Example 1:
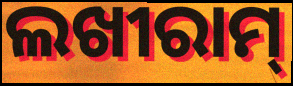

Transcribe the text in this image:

ଲଖୀରାମ୍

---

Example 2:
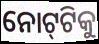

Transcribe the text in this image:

ନୋଟ୍‌ଟିକୁ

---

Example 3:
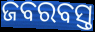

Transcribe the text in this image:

ଜବରବସ୍ତ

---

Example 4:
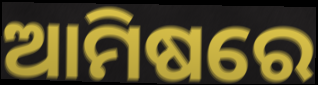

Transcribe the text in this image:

ଆମିଷରେ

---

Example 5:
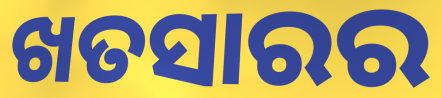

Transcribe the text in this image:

ଖତସାରର